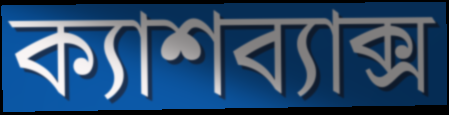
ক্যাশব্যাক্স